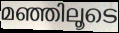
മഞ്ഞിലൂടെ